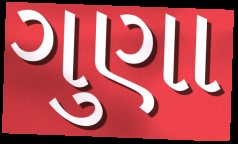
ગુણા